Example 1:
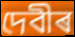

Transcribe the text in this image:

দেবীৰ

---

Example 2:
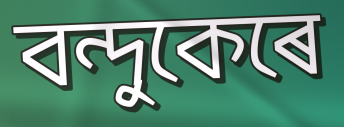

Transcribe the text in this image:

বন্দুকেৰে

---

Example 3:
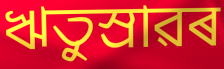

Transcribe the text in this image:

ঋতুস্ৰাৱৰ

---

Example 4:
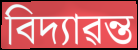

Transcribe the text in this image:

বিদ্যাৱন্ত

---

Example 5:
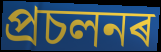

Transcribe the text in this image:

প্ৰচলনৰ